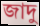
জাদু